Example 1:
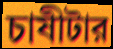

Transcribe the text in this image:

চাষীটার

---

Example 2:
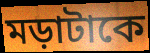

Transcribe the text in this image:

মড়াটাকে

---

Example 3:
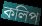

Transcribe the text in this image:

কলিপ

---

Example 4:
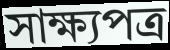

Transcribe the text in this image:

সাক্ষ্যপত্র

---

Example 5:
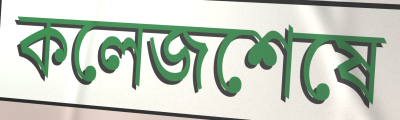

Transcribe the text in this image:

কলেজশেষে